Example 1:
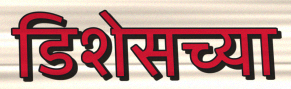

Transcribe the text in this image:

डिशेसच्या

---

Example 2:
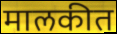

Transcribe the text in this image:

मालकीत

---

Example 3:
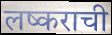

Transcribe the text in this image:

लष्कराची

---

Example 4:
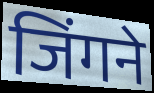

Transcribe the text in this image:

जिंगने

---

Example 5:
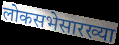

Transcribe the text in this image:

लोकसभेसारख्या